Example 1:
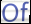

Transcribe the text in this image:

Of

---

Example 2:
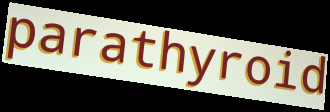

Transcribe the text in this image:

parathyroid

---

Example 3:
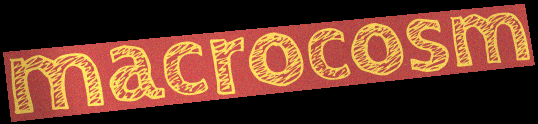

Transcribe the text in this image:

macrocosm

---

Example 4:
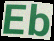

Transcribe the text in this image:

Eb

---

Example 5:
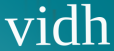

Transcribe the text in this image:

vidh